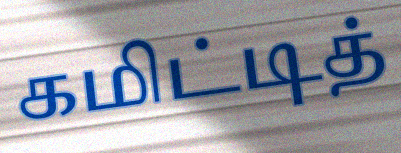
கமிட்டித்